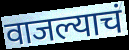
वाजल्याचं